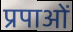
प्रपाओं